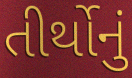
તીર્થોનું